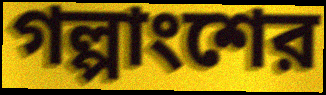
গল্পাংশের